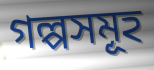
গল্পসমূহ